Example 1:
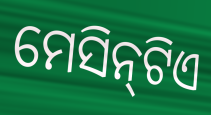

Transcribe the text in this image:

ମେସିନ୍‌ଟିଏ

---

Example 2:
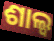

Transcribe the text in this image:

ଶାଲ୍ୱ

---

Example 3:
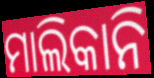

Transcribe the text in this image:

ମାଲିକାନି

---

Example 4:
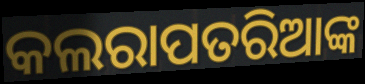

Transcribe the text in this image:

କଲରାପତରିଆଙ୍କ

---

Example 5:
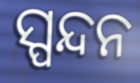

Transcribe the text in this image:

ସ୍ପନ୍ଦନ